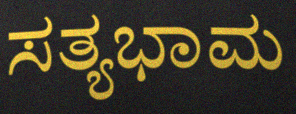
ಸತ್ಯಭಾಮ